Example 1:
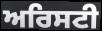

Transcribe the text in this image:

ਅਰਿਸਟੀ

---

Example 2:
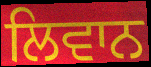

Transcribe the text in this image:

ਲਿਵਾਨ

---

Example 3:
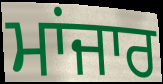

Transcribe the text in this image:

ਮਾਂਜਾਰ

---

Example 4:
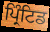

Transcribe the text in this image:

ਪ੍ਰਿੰਟਿਡ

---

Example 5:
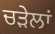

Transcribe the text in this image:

ਚੜੇਲਾਂ